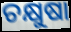
ଚକ୍ଷୁଷା